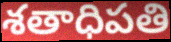
శతాధిపతి